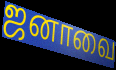
ஜனாவை